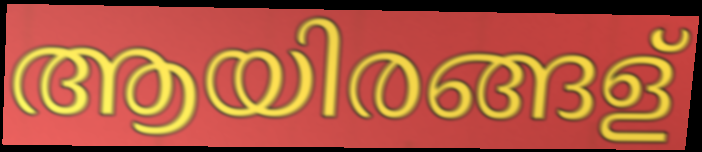
ആയിരങ്ങള്